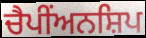
ਚੈਪੀਂਅਨਸ਼ਿਪ